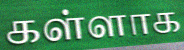
கள்ளாக